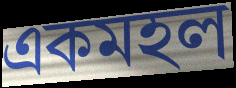
একমহল